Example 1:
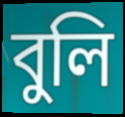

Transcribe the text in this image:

বুলি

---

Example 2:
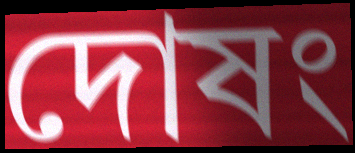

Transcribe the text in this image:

দোষং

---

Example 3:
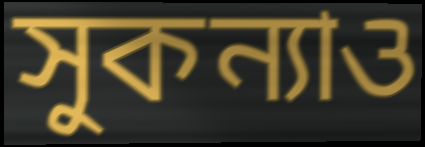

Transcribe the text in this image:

সুকন্যাও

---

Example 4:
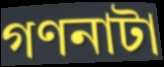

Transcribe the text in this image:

গণনাটা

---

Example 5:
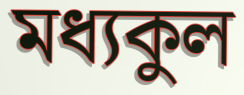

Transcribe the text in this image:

মধ্যকুল